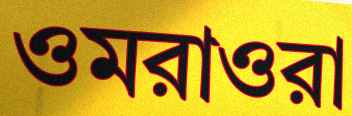
ওমরাওরা